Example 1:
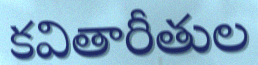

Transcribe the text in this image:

కవితారీతుల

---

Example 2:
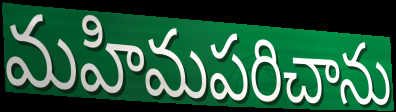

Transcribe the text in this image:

మహిమపరిచాను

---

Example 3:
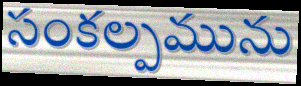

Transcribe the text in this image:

సంకల్పమును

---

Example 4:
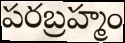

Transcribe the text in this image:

పరబ్రహ్మం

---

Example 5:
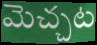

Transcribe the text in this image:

మెచ్చట